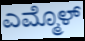
ಎಮ್ಮೊಳ್